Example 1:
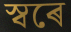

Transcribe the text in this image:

স্বৰে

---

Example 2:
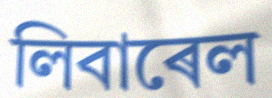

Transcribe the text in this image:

লিবাৰেল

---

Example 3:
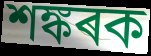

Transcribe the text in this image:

শঙ্কৰক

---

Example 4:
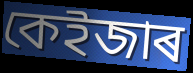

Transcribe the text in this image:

কেইজাৰ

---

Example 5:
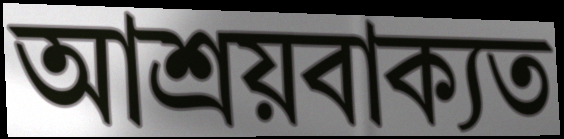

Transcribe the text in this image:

আশ্ৰয়বাক্য়ত